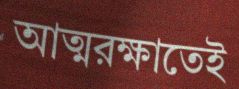
আত্মরক্ষাতেই